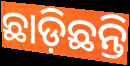
ଛାଡ଼ିଛନ୍ତି